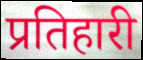
प्रतिहारी